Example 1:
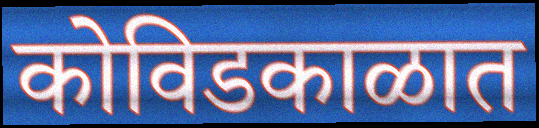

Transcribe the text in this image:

कोविडकाळात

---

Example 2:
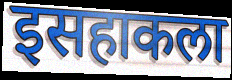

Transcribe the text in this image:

इसहाकला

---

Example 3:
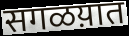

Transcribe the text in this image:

सगळय़ात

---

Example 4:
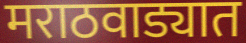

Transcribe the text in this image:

मराठवाड्यात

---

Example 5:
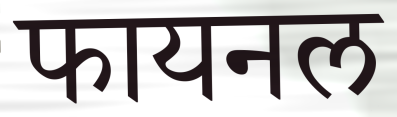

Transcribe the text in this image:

फायनल